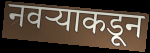
नवऱ्याकडून